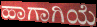
ಹಾಗಾಗಿಯೆ